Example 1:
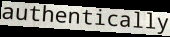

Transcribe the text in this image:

authentically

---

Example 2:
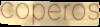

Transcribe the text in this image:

coperos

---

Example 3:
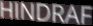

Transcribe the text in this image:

HINDRAF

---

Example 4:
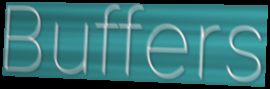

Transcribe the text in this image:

Buffers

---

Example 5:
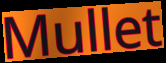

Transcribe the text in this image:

Mullet